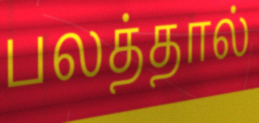
பலத்தால்